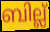
ബില്ല്